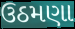
ઉઠમણા